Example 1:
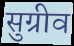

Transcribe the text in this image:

सुग्रीव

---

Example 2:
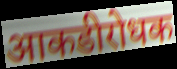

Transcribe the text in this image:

आकडीरोधक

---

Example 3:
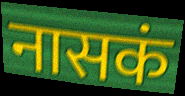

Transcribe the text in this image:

नासकं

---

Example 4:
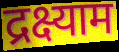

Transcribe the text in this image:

द्रक्ष्याम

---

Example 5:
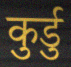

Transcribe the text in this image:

कुर्डु